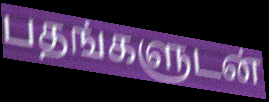
பதங்களுடன்